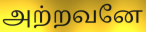
அற்றவனே